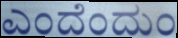
ಎಂದೆಂದುಂ